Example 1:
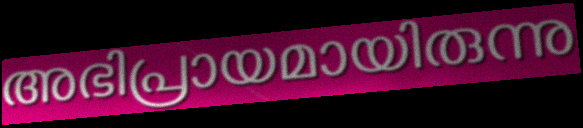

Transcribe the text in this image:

അഭിപ്രായമായിരുന്നു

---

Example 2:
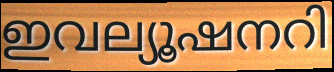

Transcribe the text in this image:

ഇവല്യൂഷനറി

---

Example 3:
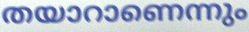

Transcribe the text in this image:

തയാറാണെന്നും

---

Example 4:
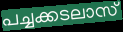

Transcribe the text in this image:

പച്ചക്കടലാസ്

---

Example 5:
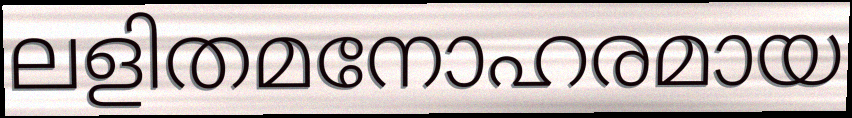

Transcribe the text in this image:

ലളിതമനോഹരമായ